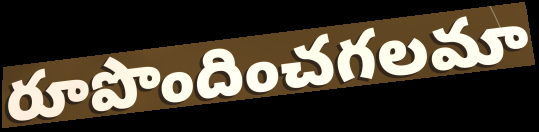
రూపొందించగలమా